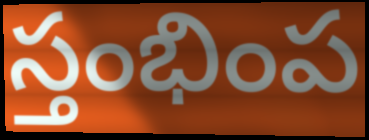
స్తంభింప